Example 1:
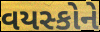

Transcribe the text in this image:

વયસ્કોને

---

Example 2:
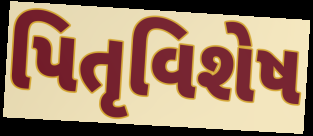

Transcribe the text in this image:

પિતૃવિશેષ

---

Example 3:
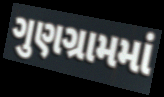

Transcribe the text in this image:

ગુણગ્રામમાં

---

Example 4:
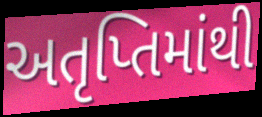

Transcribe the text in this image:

અતૃપ્તિમાંથી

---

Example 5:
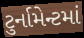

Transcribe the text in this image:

ટુર્નામેન્ટમાં